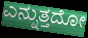
ಎನ್ನುತ್ತದೋ